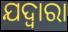
ଯଦ୍ୱାରା